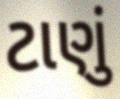
ટાણું